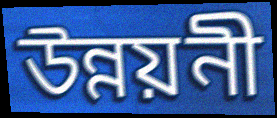
উন্নয়নী